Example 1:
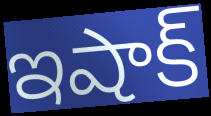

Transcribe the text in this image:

ఇషాక్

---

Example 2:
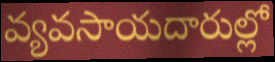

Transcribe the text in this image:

వ్యవసాయదారుల్లో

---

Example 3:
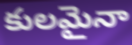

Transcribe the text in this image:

కులమైనా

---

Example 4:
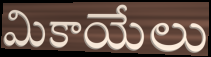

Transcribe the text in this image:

మికాయేలు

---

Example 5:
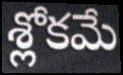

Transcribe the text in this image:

శ్లోకమే